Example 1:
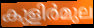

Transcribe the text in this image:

കുളിർമുല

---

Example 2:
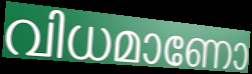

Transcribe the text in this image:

വിധമാണോ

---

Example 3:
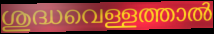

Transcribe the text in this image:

ശുദ്ധവെള്ളത്താൽ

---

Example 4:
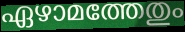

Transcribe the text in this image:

ഏഴാമത്തേതും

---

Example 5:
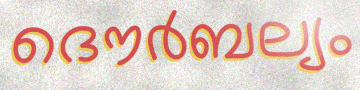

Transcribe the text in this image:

ദൌർബല്യം